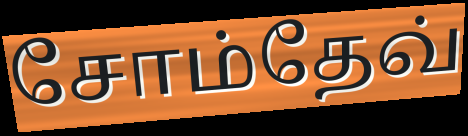
சோம்தேவ்